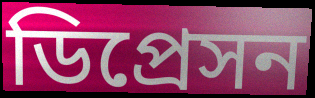
ডিপ্রেসন